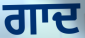
ਗਾਦ